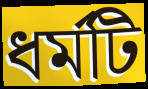
ধর্মটি